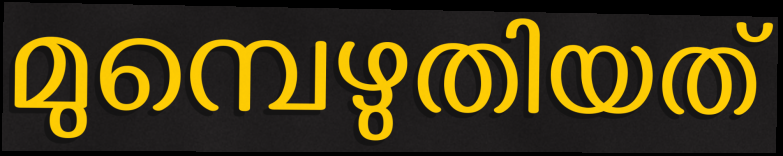
മുമ്പെഴുതിയത്